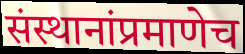
संस्थानांप्रमाणेच